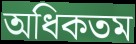
অধিকতম